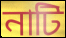
নাটি